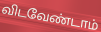
விடவேண்டாம்